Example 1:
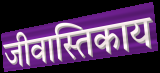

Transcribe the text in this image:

जीवास्तिकाय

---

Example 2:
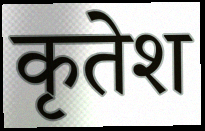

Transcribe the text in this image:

कृतेश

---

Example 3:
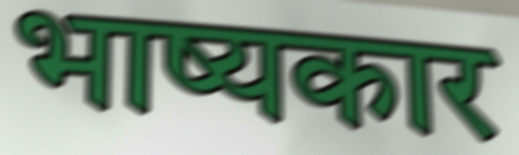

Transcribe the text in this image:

भाष्यकार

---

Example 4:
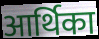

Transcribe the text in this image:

आर्थिका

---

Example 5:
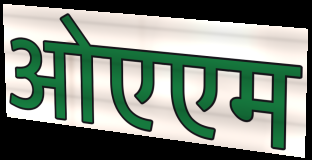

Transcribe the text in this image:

ओएएम